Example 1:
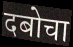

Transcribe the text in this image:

दबोचा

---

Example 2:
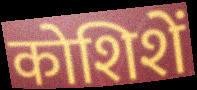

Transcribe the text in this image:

कोशिशें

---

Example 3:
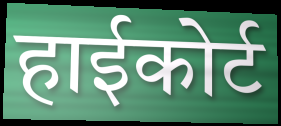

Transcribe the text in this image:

हाईकोर्ट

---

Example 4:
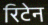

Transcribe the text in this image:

रिटेन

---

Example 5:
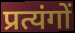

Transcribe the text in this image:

प्रत्यंगों